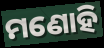
ମଣୋହି